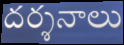
దర్శనాలు